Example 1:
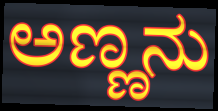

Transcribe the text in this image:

ಅಣ್ಣನು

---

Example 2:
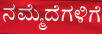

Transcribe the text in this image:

ನಮ್ಮೆದೆಗಳಿಗೆ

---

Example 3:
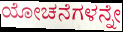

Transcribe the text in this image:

ಯೋಚನೆಗಳನ್ನೇ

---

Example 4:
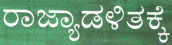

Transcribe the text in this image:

ರಾಜ್ಯಾಡಳಿತಕ್ಕೆ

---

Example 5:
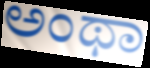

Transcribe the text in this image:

ಅಂಥಾ